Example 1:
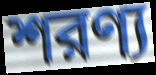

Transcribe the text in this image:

শরণ্য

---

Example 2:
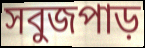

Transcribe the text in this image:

সবুজপাড়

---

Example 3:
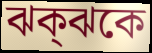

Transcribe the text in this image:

ঝক্ঝকে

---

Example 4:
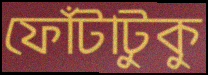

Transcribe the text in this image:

ফোঁটাটুকু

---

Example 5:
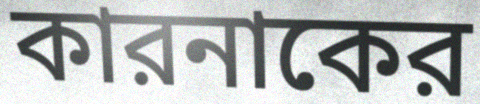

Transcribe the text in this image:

কারনাকের